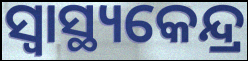
ସ୍ୱାସ୍ଥ୍ୟକେନ୍ଦ୍ର